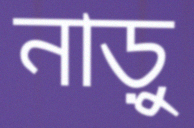
নাড়ু